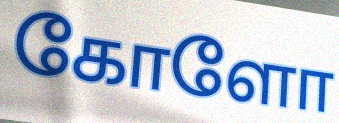
கோளோ